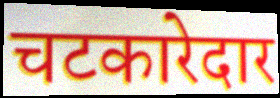
चटकारेदार